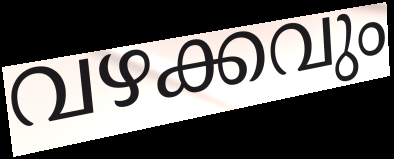
വഴക്കവും